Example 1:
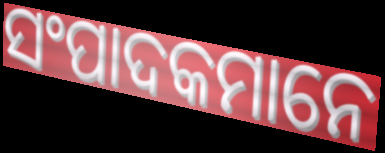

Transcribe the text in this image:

ସଂପାଦକମାନେ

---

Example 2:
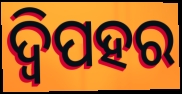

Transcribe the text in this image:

ଦ୍ୱିପହର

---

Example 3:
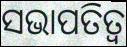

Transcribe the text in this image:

ସଭାପତିତ୍ଵ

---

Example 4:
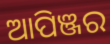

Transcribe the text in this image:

ଆପିଞ୍ଜର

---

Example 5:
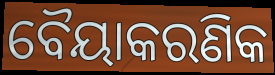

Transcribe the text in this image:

ବୈୟାକରଣିକ